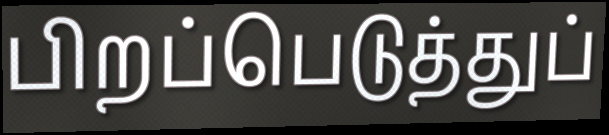
பிறப்பெடுத்துப்